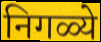
निगळ्ये